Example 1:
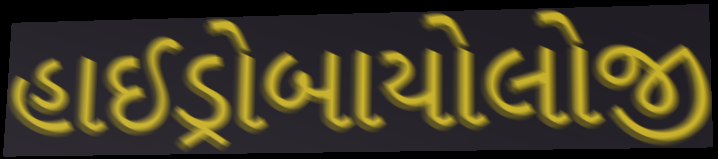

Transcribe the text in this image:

હાઈડ્રોબાયોલોજી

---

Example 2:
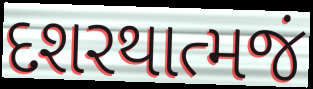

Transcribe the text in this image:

દશરથાત્મજં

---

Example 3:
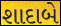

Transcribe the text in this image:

શાદાબે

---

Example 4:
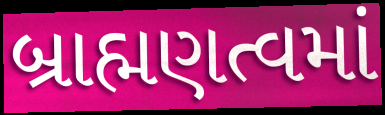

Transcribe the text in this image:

બ્રાહ્મણત્વમાં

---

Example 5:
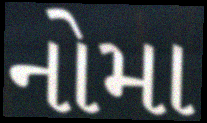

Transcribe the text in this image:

નોમા